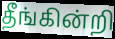
தீங்கின்றி